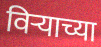
विर्‍याच्या